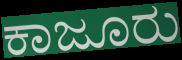
ಕಾಜೂರು